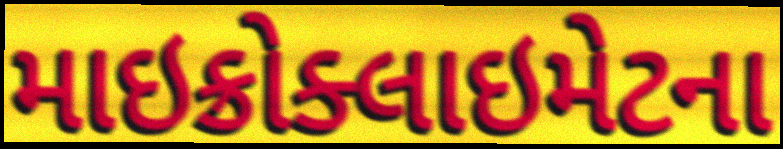
માઇક્રોક્લાઇમેટના